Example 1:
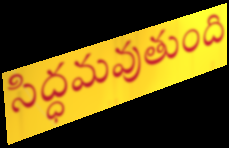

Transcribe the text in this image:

సిద్ధమవుతుంది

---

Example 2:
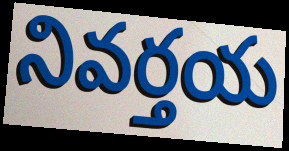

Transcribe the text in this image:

నివర్తయ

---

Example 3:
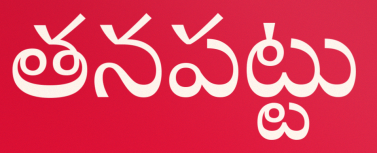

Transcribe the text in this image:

తనపట్టు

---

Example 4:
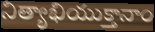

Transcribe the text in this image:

నిత్యాభియుక్తానాం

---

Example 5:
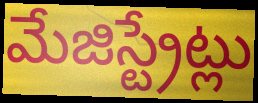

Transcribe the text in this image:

మేజిస్ట్రేట్లు